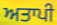
ਅਤਾਪੀ